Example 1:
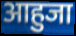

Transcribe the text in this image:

आहुजा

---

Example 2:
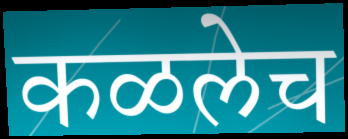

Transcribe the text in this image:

कळलेच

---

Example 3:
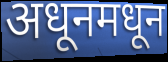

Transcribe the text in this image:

अधूनमधून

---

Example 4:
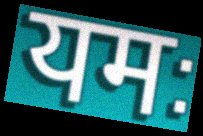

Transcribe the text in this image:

यमः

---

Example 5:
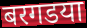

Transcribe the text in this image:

बरगडया